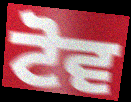
ਟੋਵ